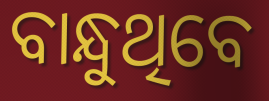
ବାନ୍ଧୁଥିବେ